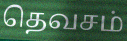
தெவசம்